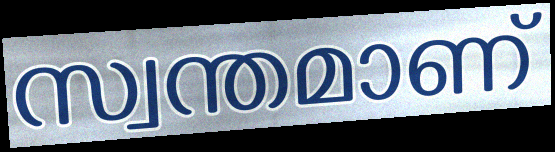
സ്വന്തമാണ്